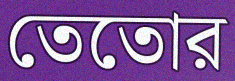
তেতোর